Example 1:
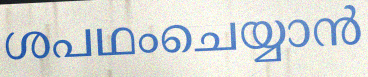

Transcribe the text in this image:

ശപഥംചെയ്യാൻ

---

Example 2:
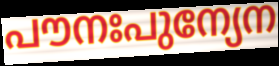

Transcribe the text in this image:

പൗനഃപുന്യേന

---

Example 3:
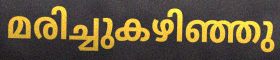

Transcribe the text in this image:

മരിച്ചുകഴിഞ്ഞു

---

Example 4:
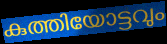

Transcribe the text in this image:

കുത്തിയോട്ടവും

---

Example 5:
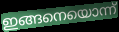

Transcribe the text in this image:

ഇങ്ങനെയൊന്ന്